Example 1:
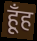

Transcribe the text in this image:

हूँह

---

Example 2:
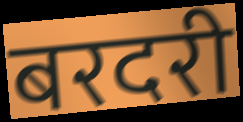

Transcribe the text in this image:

बरदरी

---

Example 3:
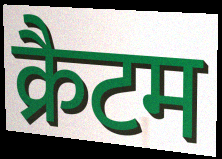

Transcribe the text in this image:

क्रैटम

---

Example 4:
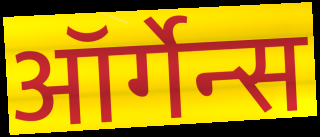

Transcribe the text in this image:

ऑर्गेन्स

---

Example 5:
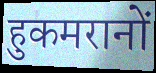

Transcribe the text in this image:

हुकमरानों